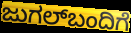
ಜುಗಲ್‌ಬಂದಿಗೆ